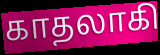
காதலாகி